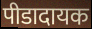
पीडादायक